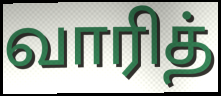
வாரித்